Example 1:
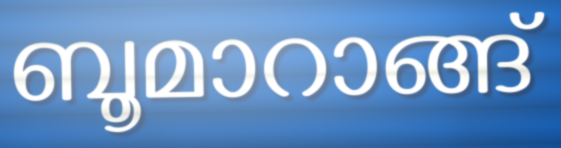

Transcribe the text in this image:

ബൂമാറാങ്ങ്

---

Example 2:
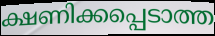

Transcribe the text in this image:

ക്ഷണിക്കപ്പെടാത്ത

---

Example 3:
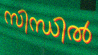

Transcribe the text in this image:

സിന്ധിൽ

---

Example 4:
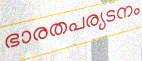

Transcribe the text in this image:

ഭാരതപര്യടനം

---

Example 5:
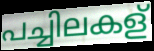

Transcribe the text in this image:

പച്ചിലകള്